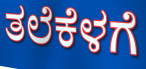
ತಲೆಕೆಳಗೆ